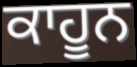
ਕਾਹੂਨ